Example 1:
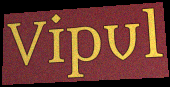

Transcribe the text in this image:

Vipul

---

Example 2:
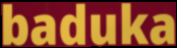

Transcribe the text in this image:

baduka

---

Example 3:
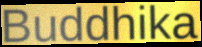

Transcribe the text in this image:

Buddhika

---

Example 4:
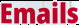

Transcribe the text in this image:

Emails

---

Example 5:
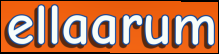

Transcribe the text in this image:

ellaarum